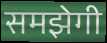
समझेगी